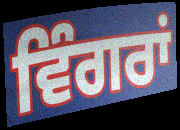
ਵਿੰਗਰਾਂ